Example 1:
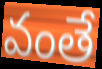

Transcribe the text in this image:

వంతే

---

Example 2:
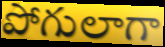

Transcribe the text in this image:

పోగులాగా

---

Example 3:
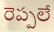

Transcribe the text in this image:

రెప్పలే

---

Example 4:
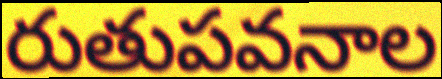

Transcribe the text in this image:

రుతుపవనాల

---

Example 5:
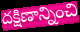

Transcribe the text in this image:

దక్షిణాన్నించి